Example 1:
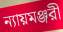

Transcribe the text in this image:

ন্যায়মঞ্জরী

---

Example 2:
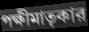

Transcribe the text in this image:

পক্ষীমাতৃকার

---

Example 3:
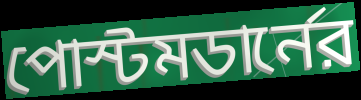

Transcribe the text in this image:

পোস্টমডার্নের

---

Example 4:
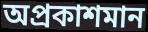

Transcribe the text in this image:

অপ্রকাশমান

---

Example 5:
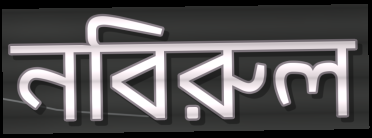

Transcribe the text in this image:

নবিরুল